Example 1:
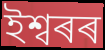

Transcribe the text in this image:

ইশ্বৰৰ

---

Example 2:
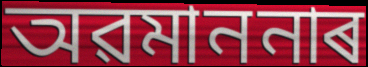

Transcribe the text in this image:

অৱমাননাৰ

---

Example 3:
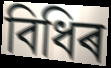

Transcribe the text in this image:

বিধিৰ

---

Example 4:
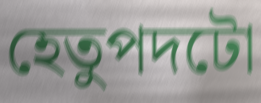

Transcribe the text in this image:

হেতুপদটো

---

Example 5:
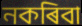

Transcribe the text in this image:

নকৰিবা